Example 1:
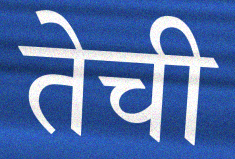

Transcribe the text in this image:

तेची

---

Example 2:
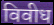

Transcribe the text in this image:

विवीध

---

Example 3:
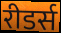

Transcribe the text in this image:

रीडर्स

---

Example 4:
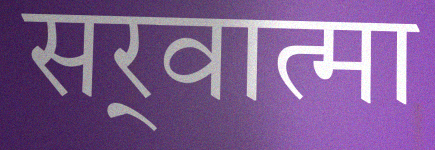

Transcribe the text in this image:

सर्वात्मा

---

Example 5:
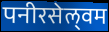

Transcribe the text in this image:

पनीरसेल्वम